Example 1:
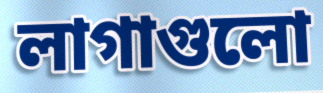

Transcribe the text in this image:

লাগাগুলো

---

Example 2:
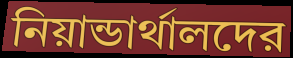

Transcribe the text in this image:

নিয়ান্ডার্থালদের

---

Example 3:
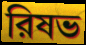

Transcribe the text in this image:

রিষভ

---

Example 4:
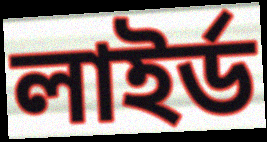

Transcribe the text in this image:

লাইর্ড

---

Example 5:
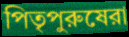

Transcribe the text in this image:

পিতৃপুরুষেরা